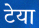
टेया